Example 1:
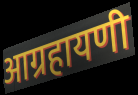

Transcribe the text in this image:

आग्रहायणी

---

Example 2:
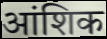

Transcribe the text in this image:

आंशिक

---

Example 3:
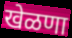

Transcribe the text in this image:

खेळणा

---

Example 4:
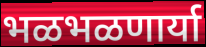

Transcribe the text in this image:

भळभळणार्या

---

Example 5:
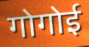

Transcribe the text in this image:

गोगोई